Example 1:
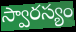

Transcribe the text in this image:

స్వారస్యం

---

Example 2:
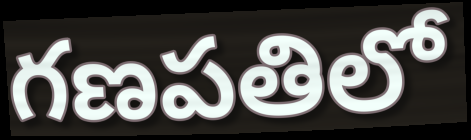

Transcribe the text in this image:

గణపతిలో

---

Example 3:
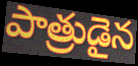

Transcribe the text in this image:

పాత్రుడైన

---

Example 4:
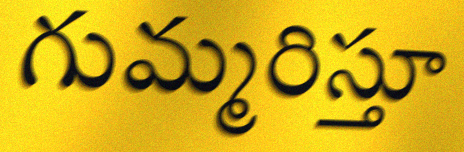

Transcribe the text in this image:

గుమ్మరిస్తూ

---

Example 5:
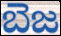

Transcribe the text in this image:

బెజ